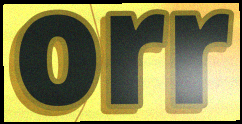
orr